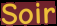
Soir